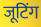
जूटिंग